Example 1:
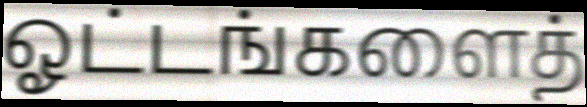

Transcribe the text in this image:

ஓட்டங்களைத்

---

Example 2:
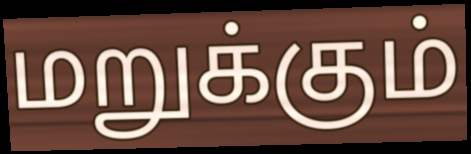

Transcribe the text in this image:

மறுக்கும்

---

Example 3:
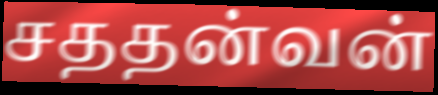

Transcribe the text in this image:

சததன்வன்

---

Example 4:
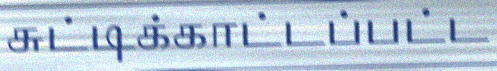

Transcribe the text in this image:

சுட்டிக்காட்டப்பட்ட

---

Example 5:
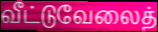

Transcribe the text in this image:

வீட்டுவேலைத்